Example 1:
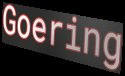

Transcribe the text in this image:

Goering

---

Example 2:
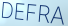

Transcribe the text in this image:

DEFRA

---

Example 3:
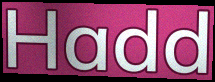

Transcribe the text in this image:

Hadd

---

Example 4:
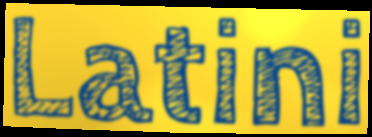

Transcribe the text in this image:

Latini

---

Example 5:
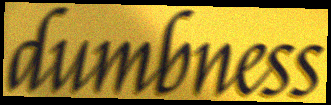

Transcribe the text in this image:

dumbness